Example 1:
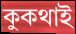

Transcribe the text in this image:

কুকথাই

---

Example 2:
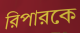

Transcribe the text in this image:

রিপারকে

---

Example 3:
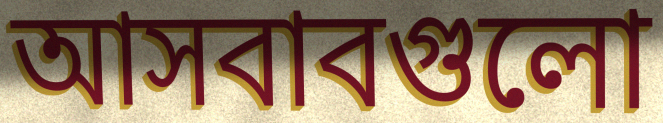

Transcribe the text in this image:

আসবাবগুলো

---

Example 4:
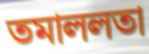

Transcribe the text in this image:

তমাললতা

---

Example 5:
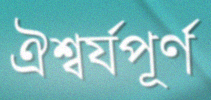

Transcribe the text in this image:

ঐশ্বর্যপূর্ণ